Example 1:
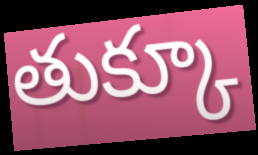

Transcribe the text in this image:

తుక్కూ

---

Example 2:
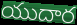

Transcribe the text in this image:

యుదార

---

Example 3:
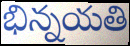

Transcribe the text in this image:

భిన్నయతి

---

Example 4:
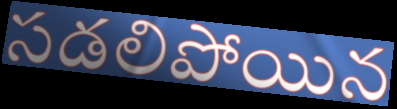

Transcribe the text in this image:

సడలిపోయిన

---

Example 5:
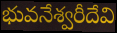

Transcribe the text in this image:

భువనేశ్వరీదేవి